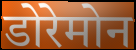
डोरेमोन